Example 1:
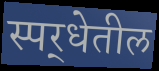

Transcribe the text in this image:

स्पर्धेतील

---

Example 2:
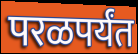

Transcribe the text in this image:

परळपर्यंत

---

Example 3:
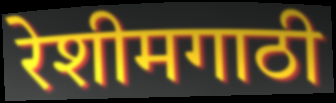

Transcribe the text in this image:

रेशीमगाठी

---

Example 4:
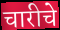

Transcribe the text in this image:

चारीचे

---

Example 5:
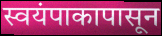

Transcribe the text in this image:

स्वयंपाकापासून